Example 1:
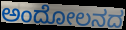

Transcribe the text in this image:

ಅಂದೋಲನದ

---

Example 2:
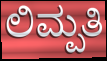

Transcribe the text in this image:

ಲಿಮ್ಪತಿ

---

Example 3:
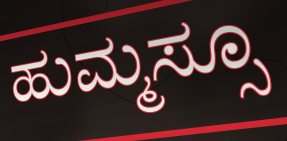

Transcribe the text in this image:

ಹುಮ್ಮಸ್ಸೂ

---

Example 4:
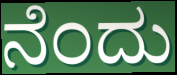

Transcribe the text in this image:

ನೆಂದು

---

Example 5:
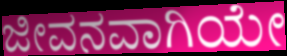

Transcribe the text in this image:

ಜೀವನವಾಗಿಯೇ